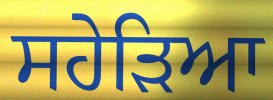
ਸਹੇੜਿਆ